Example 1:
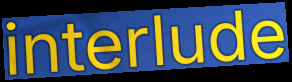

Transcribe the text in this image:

interlude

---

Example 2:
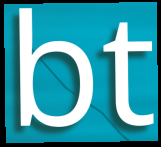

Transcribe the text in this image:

bt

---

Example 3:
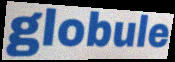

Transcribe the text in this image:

globule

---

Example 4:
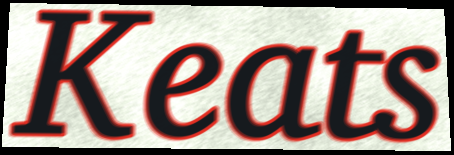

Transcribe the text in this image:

Keats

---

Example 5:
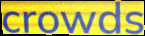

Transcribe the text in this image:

crowds